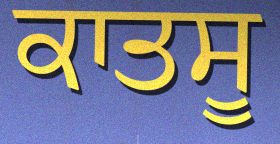
ਕਾਤਸੂ